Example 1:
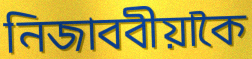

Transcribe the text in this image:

নিজাববীয়াকৈ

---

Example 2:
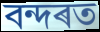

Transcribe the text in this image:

বন্দৰত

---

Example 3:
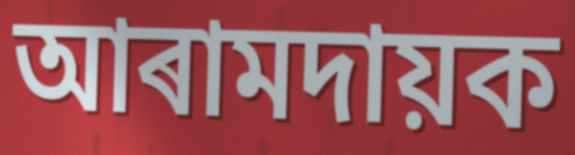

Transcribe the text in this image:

আৰামদায়ক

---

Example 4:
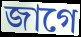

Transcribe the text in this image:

জাগে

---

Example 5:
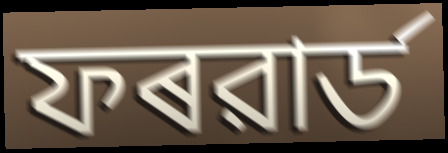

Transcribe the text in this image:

ফৰৱাৰ্ড